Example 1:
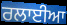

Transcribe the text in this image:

ਰਲਾਈਆ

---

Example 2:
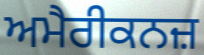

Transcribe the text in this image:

ਅਮੈਰੀਕਨਜ਼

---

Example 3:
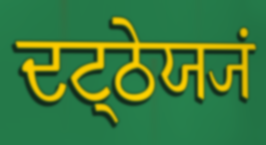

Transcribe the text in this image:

ਦਟ੍ਠੇਯ੍ਯਂ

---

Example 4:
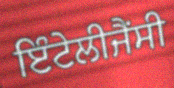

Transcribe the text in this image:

ਇੰਟੇਲੀਜੈਂਸੀ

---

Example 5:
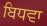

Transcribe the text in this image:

ਬਿਧਵਾ